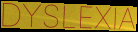
DYSLEXIA